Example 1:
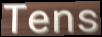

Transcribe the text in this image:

Tens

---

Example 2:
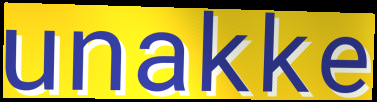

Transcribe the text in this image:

unakke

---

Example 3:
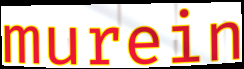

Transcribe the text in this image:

murein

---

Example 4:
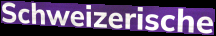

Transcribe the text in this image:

Schweizerische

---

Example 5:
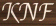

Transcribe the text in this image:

KNF